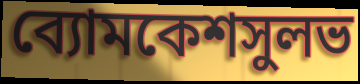
ব্যোমকেশসুলভ